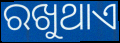
ରଖୁଥାଏ